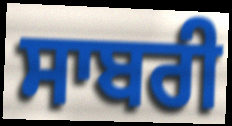
ਸਾਬਰੀ